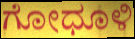
ಗೋಧೂಳಿ